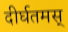
दीर्घतमस्